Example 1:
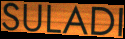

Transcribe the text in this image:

SULADI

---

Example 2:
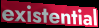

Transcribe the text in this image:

existential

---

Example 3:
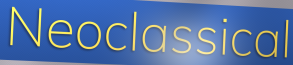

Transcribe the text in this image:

Neoclassical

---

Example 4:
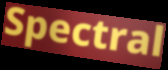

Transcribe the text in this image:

Spectral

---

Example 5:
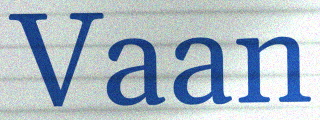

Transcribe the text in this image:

Vaan